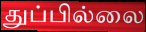
துப்பில்லை